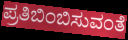
ಪ್ರತಿಬಿಂಬಿಸುವಂತೆ